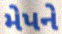
મેપને